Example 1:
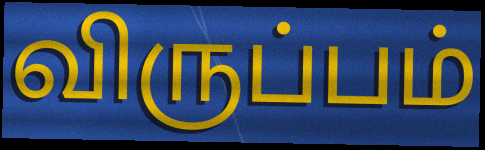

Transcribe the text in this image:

விருப்பம்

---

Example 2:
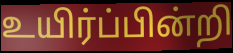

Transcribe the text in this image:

உயிர்ப்பின்றி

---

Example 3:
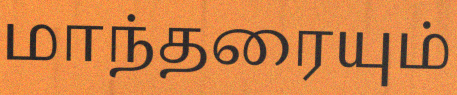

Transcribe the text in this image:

மாந்தரையும்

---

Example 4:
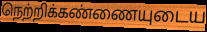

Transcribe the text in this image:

நெற்றிக்கண்ணையுடைய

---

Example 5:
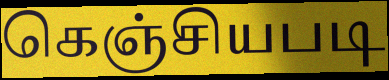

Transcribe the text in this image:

கெஞ்சியபடி